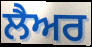
ਲੈਅਰ